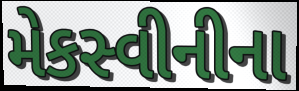
મેકસ્વીનીના